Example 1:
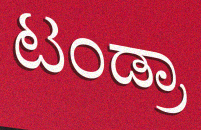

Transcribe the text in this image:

ಟಂಡ್ರಾ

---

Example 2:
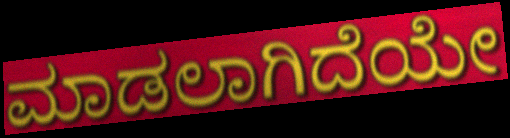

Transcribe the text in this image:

ಮಾಡಲಾಗಿದೆಯೇ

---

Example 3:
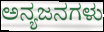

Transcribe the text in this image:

ಅನ್ಯಜನಗಳು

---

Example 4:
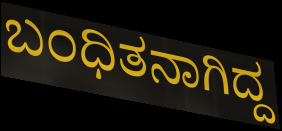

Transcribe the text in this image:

ಬಂಧಿತನಾಗಿದ್ದ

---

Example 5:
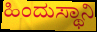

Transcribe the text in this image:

ಹಿಂದುಸ್ಥಾನಿ